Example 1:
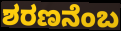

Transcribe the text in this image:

ಶರಣನೆಂಬ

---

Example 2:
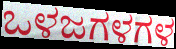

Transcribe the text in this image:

ಒಳಜಗಳಗಳ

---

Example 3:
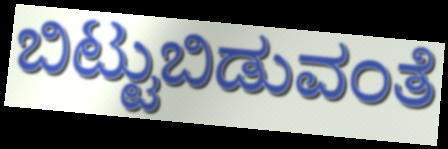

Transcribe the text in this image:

ಬಿಟ್ಟುಬಿಡುವಂತೆ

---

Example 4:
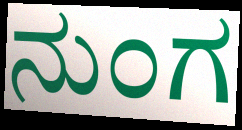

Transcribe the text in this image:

ನುಂಗ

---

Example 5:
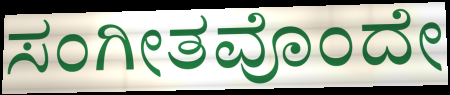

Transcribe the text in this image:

ಸಂಗೀತವೊಂದೇ